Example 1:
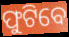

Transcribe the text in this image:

ଫୁଟିବେ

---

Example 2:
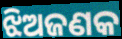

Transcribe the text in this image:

ଝିଅଜଣକ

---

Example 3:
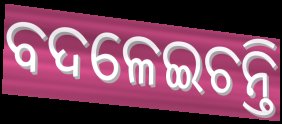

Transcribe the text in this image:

ବଦଳେଇଚନ୍ତି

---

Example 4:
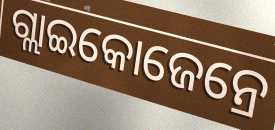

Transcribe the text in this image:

ଗ୍ଲାଇକୋଜେନ୍ରେ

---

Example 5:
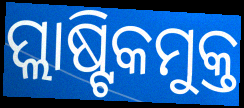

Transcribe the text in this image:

ପ୍ଲାଷ୍ଟିକମୁକ୍ତ